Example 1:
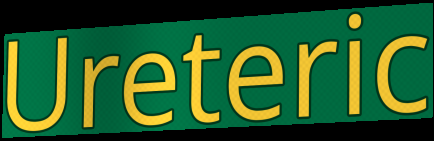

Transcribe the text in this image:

Ureteric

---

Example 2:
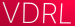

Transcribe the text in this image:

VDRL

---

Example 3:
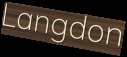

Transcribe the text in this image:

Langdon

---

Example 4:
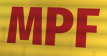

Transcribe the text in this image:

MPF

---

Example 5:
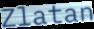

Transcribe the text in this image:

Zlatan